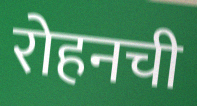
रोहनची